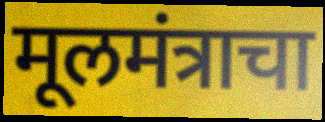
मूलमंत्राचा